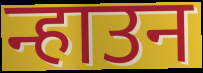
न्हाउन